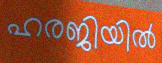
ഹരജിയിൽ